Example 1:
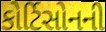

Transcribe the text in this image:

કોર્ટિસોનની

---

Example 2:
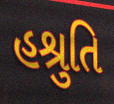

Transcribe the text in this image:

હશ્રુતિ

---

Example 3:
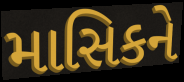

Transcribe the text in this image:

માસિકને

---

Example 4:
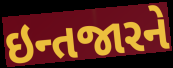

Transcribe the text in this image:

ઇન્તજારને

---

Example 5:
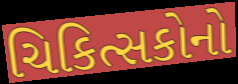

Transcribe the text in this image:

ચિકિત્સકોનો